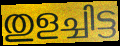
തുളച്ചിട്ട